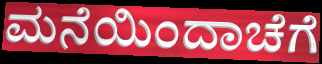
ಮನೆಯಿಂದಾಚೆಗೆ